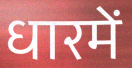
धारमें